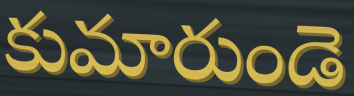
కుమారుండె